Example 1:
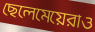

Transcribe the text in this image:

ছেলেমেয়েরাও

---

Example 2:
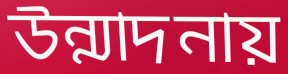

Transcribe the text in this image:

উন্মাদনায়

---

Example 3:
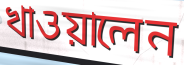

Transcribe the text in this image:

খাওয়ালেন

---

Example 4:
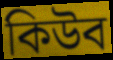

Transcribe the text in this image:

কিউব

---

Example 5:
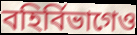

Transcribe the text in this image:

বহির্বিভাগেও